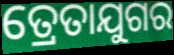
ତ୍ରେତାଯୁଗର